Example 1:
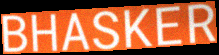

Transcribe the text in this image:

BHASKER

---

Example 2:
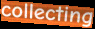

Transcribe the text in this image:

collecting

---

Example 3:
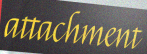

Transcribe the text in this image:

attachment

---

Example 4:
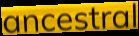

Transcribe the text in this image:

ancestral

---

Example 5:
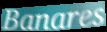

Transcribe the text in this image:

Banares